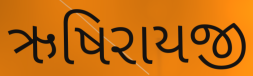
ઋષિરાયજી